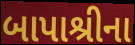
બાપાશ્રીના